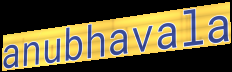
anubhavala